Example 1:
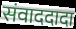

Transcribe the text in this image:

संवाददादा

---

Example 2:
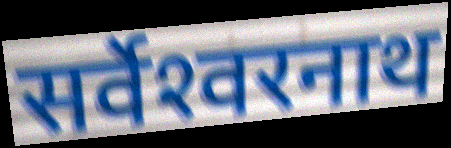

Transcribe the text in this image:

सर्वेश्वरनाथ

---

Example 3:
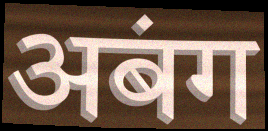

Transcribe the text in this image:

अबंग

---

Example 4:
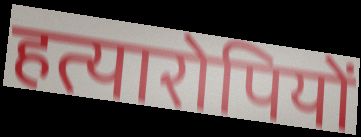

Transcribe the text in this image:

हत्‍यारोपियों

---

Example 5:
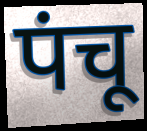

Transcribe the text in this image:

पंचू